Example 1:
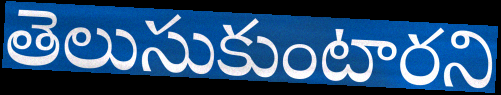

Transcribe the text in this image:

తెలుసుకుంటారని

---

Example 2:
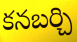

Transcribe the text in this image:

కనబర్చి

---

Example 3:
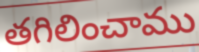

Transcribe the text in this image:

తగిలించాము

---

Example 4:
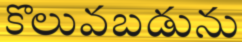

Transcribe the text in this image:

కొలువబడును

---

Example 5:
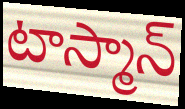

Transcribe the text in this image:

టాస్మాన్